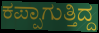
ಕಪ್ಪಾಗುತ್ತಿದ್ದ